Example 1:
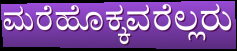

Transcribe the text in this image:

ಮರೆಹೊಕ್ಕವರೆಲ್ಲರು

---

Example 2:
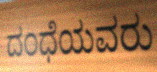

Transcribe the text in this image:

ದಂಧೆಯವರು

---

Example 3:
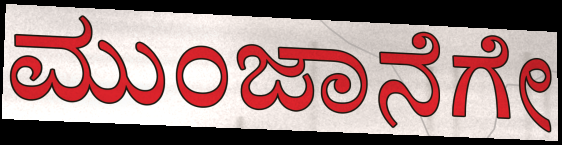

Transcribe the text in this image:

ಮುಂಜಾನೆಗೇ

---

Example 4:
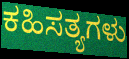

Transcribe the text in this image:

ಕಹಿಸತ್ಯಗಳು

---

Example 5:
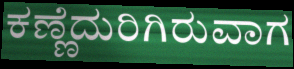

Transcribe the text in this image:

ಕಣ್ಣೆದುರಿಗಿರುವಾಗ